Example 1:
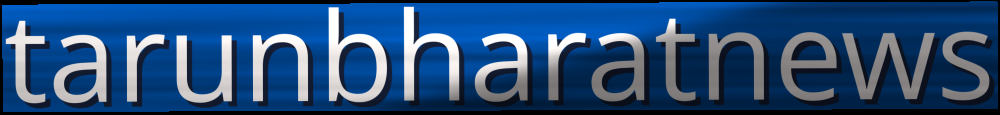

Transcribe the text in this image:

tarunbharatnews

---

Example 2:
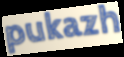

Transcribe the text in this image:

pukazh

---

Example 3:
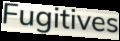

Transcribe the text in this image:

Fugitives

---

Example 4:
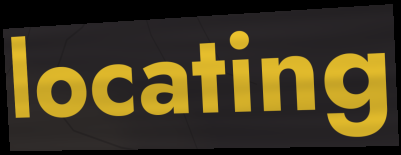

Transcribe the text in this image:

locating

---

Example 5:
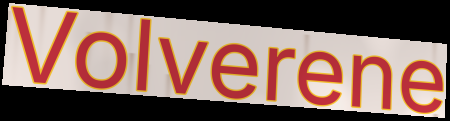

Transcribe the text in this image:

Volverene